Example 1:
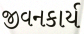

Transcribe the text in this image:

જીવનકાર્ય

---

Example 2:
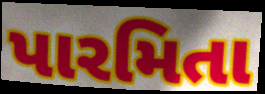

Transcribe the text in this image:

પારમિતા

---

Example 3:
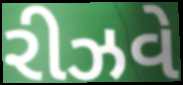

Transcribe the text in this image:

રીઝવે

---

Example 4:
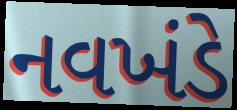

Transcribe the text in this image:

નવખંડે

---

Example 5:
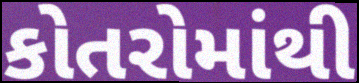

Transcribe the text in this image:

કોતરોમાંથી